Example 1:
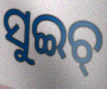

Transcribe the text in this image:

ସୁଇଚ୍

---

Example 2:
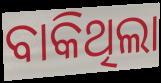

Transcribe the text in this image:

ବାକିଥିଲା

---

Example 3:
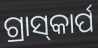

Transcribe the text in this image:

ଗ୍ରାସ୍‌କାର୍ପ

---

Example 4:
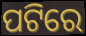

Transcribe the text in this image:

ପଟିରେ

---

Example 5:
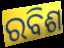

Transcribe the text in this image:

ରବିଶ